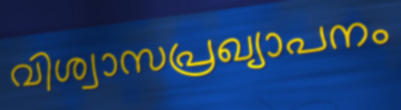
വിശ്വാസപ്രഖ്യാപനം